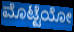
ಮೊಟ್ಟೆಯೋ